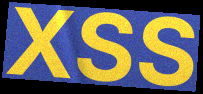
XSS